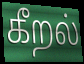
கீறல்